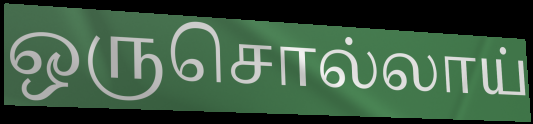
ஒருசொல்லாய்